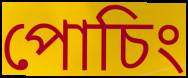
পোচিং